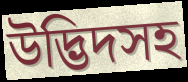
উদ্ভিদসহ